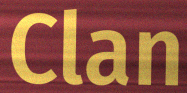
Clan